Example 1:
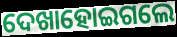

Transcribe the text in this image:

ଦେଖାହୋଇଗଲେ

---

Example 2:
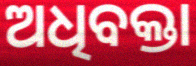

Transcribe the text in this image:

ଅଧିବକ୍ତା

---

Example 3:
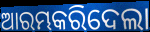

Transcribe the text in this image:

ଆରମ୍ଭକରିଦେଲା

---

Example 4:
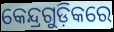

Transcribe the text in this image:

କେନ୍ଦ୍ରଗୁଡ଼ିକରେ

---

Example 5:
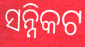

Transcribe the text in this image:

ସନ୍ନିକଟ